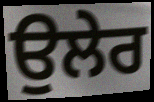
ਉਲੇਰ